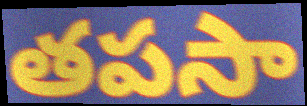
తపసా